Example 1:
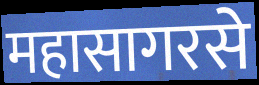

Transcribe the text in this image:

महासागरसे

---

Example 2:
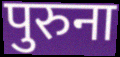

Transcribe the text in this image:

पुरुना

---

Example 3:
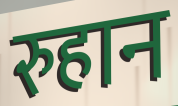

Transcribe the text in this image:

रुहान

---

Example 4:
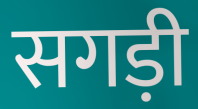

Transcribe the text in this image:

सगड़ी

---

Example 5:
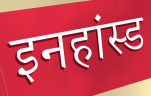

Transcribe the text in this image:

इनहांस्ड